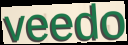
veedo